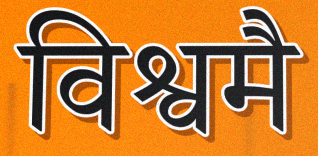
विश्वमै